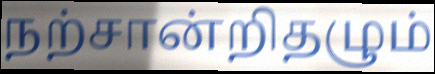
நற்சான்றிதழும்